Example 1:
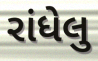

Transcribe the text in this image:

રાંધેલુ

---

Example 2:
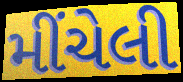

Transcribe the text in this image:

મીંચેલી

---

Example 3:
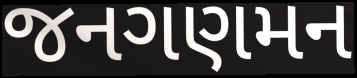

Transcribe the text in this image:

જનગણમન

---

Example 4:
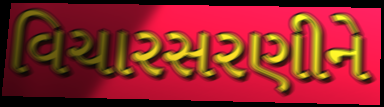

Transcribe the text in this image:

વિચારસરણીને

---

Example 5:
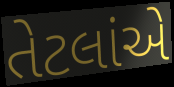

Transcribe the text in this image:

તેટલાંએ